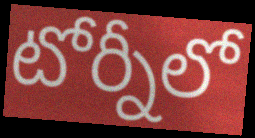
టోర్నీలో